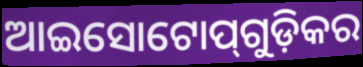
ଆଇସୋଟୋପ୍‌ଗୁଡ଼ିକର